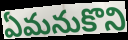
ఏమనుకొని